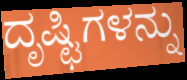
ದೃಷ್ಟಿಗಳನ್ನು